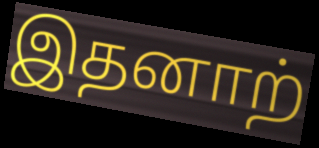
இதனாற்